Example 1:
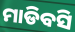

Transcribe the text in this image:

ମାଡିବସି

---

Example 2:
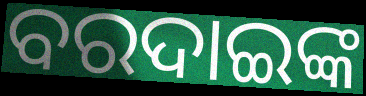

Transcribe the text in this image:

ବରଦାଇଙ୍କ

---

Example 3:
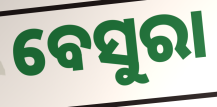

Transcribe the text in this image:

ବେସୁରା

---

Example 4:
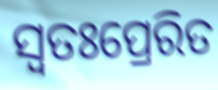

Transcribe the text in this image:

ସ୍ୱତଃପ୍ରେରିତ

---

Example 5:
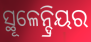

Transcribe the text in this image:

ସ୍ଥୂଳେନ୍ଦ୍ରିୟର